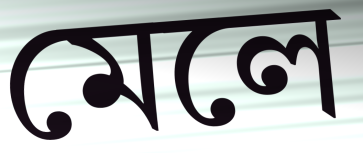
মেলে